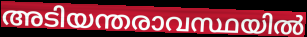
അടിയന്തരാവസ്ഥയിൽ